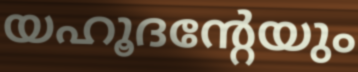
യഹൂദന്റേയും